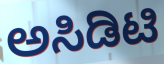
ಅಸಿಡಿಟಿ